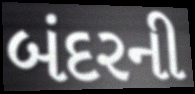
બંદરની